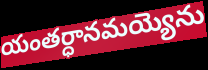
యంతర్ధానమయ్యెను